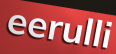
eerulli